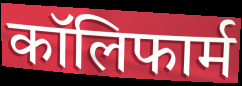
कॉलिफार्म